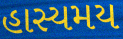
હાસ્યમય